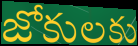
జోకులకు